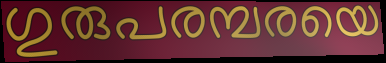
ഗുരുപരമ്പരയെ